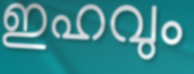
ഇഹവും